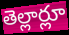
తెల్లార్లూ